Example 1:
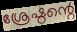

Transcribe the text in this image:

ശ്രേഷ്ഠന്റെ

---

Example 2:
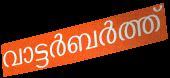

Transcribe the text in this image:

വാട്ടർബർത്ത്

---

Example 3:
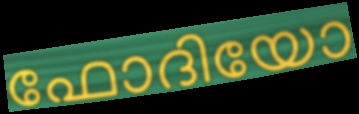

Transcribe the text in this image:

ഫോദിയോ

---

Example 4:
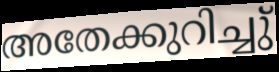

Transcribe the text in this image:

അതേക്കുറിച്ചു്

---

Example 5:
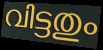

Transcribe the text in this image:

വിട്ടതും